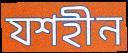
যশহীন